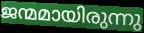
ജന്മമായിരുന്നു